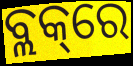
ବ୍ଲକ୍‌ରେ